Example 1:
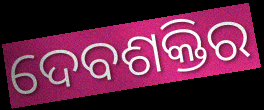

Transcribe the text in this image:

ଦେବଶକ୍ତିର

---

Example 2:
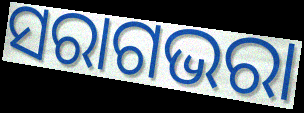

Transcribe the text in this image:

ସରାଗଭରା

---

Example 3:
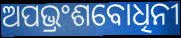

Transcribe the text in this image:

ଅପଭ୍ରଂଶବୋଧିନୀ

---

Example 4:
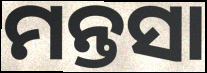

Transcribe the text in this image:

ମନ୍ତସା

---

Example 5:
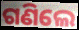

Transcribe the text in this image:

ଗଣିଲେ